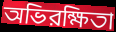
অভিরক্ষিতা